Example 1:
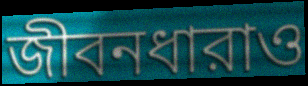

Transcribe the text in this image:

জীবনধারাও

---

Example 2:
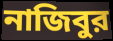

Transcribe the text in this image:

নাজিবুর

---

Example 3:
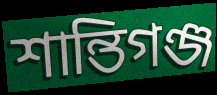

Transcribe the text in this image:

শান্তিগঞ্জ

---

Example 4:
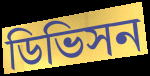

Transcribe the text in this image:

ডিভিসন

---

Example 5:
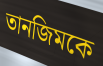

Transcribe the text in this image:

তানজিমকে